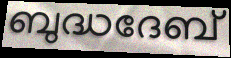
ബുദ്ധദേബ്